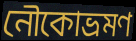
নৌকোভ্রমণ